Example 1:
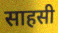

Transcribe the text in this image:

साहसी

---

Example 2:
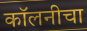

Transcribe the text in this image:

कॉलनीचा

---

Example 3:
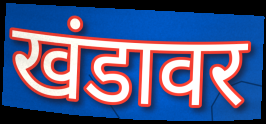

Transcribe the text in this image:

खंडावर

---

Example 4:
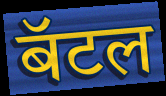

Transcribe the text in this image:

बॅटल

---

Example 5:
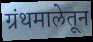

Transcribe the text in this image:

ग्रंथमालेतून